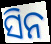
ସିନ